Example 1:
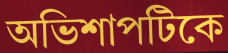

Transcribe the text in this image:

অভিশাপটিকে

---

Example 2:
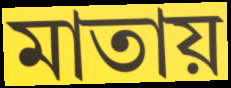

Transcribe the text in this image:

মাতায়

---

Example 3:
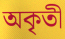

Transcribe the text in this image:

অকৃতী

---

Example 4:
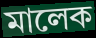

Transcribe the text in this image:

মালেক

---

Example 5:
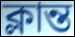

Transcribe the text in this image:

ক্লান্ত